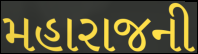
મહારાજની